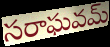
సరాఘవమ్